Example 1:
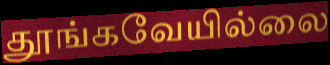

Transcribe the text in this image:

தூங்கவேயில்லை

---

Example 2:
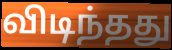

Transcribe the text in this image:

விடிந்தது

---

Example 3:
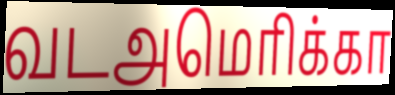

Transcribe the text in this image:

வடஅமெரிக்கா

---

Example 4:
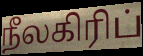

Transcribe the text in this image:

நீலகிரிப்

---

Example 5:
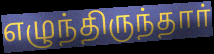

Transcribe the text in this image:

எழுந்திருந்தார்